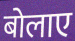
बोलाए